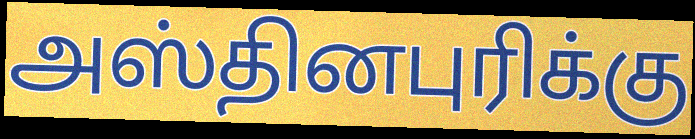
அஸ்தினபுரிக்கு